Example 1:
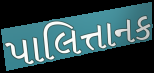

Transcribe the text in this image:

પાલિત્તાનક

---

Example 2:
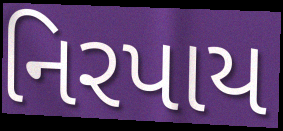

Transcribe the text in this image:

નિરપાય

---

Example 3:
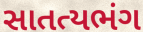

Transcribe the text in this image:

સાતત્યભંગ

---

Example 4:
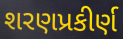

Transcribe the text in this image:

શરણપ્રકીર્ણ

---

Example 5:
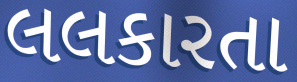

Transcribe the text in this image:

લલકારતા